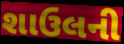
શાઉલની